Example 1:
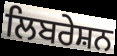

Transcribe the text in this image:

ਲਿਬਰੇਸ਼ਨ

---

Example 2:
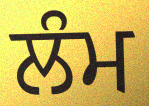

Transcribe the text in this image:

ਲੰਮ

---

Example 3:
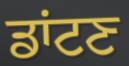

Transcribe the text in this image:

ਡਾਂਟਣ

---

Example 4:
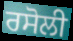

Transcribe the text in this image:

ਰਸੋਲੀ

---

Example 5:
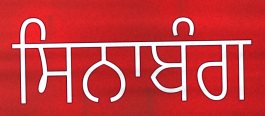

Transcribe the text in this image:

ਸਿਨਾਬੰਗ